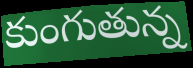
కుంగుతున్న